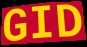
GID